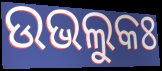
ଉଭଲୁକଃ